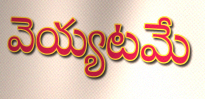
వెయ్యటమే